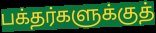
பக்தர்களுக்குத்